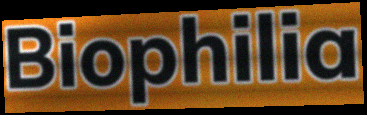
Biophilia